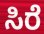
ಸಿರೆ